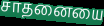
சாதனையை